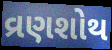
વ્રણશોથ